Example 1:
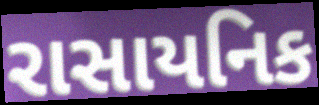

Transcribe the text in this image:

રાસાયનિક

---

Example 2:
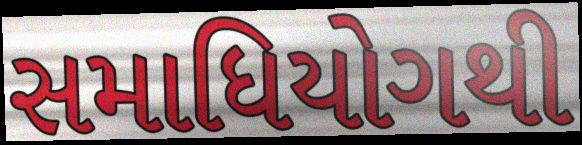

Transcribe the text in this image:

સમાધિયોગથી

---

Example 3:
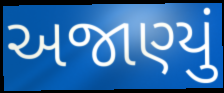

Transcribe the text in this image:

અજાણ્યું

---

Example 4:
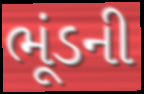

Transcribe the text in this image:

ભૂંડની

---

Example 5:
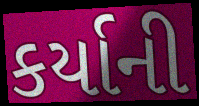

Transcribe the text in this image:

કર્યાની